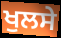
ਖੁਲਸੇ